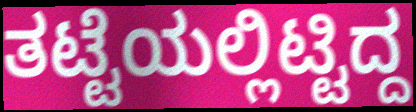
ತಟ್ಟೆಯಲ್ಲಿಟ್ಟಿದ್ದ